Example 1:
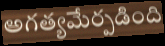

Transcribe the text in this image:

అగత్యమేర్పడింది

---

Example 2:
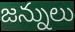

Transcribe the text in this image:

జన్నులు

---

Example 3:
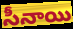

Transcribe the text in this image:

సీనాయి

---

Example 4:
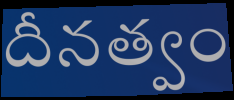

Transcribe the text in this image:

దీనత్వం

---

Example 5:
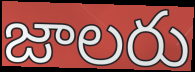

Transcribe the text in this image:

జాలరు